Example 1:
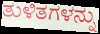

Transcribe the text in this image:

ತುಳಿತಗಳನ್ನು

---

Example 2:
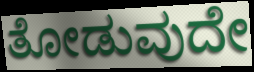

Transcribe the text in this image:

ತೋಡುವುದೇ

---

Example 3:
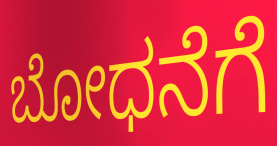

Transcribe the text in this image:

ಬೋಧನೆಗೆ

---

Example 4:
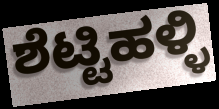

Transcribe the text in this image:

ಶೆಟ್ಟಿಹಳ್ಳಿ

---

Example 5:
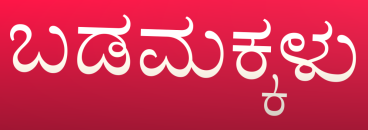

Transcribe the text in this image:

ಬಡಮಕ್ಕಳು